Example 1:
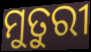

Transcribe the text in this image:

ମୁତୁରୀ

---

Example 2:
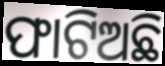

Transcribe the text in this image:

ଫାଟିଅଛି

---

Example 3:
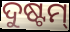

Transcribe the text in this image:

ଦୁଷ୍ଟମ୍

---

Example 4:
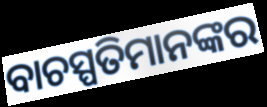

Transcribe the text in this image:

ବାଚସ୍ପତିମାନଙ୍କର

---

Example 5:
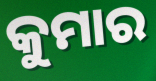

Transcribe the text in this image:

କୁମାର